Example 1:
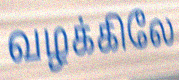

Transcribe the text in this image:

வழக்கிலே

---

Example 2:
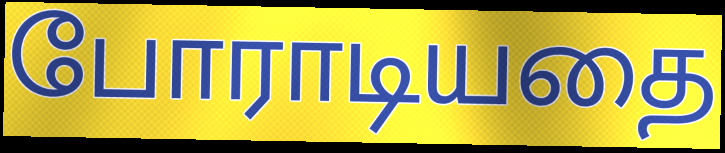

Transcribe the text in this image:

போராடியதை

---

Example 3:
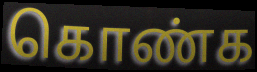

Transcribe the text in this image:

கொண்க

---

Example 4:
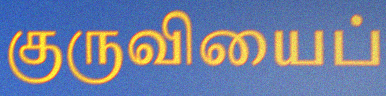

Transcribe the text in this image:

குருவியைப்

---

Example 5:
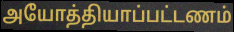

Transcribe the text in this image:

அயோத்தியாப்பட்டணம்